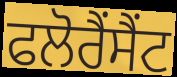
ਫਲੋਰੈਂਸੈਂਟ